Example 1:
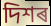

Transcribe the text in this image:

দিশৰ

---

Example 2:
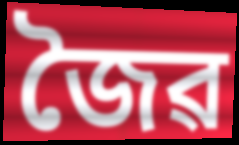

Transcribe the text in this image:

জৈৱ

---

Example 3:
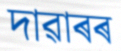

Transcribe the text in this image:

দাৱাৰৰ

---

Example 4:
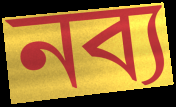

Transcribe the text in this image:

নব্য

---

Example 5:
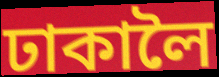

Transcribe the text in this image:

ঢাকালৈ